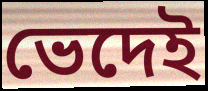
ভেদেই